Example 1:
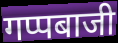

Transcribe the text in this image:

गप्पबाजी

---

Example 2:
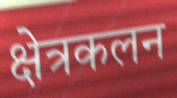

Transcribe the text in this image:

क्षेत्रकलन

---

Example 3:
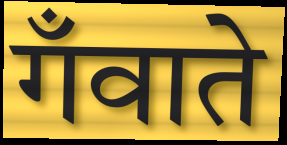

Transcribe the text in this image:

गँवाते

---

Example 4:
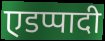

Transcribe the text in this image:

एडप्पादी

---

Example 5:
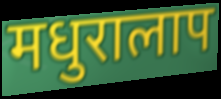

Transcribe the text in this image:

मधुरालाप